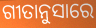
ଗୀତାନୁସାରେ